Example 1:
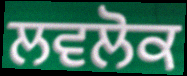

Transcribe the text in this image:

ਲਵਲੋਕ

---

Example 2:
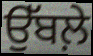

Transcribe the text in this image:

ਉੱਬਲ਼ੇ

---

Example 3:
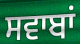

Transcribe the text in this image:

ਸਵਾਬਾਂ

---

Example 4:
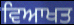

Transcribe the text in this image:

ਵਿਆਖਤ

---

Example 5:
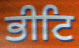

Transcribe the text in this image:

ਭੀਟਿ